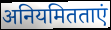
अनियमितताएं